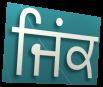
ਜਿਂਕ